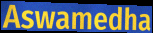
Aswamedha